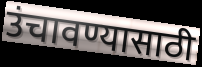
उंचावण्यासाठी